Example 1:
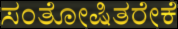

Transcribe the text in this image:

ಸಂತೋಷಿತರೇಕೆ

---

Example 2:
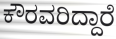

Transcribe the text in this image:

ಕೌರವರಿದ್ದಾರೆ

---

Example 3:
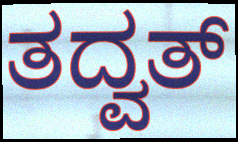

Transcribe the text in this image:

ತದ್ವತ್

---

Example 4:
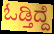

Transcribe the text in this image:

ಓಡ್ತಿದ್ದೆ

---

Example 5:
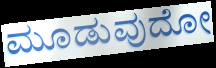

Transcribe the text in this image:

ಮೂಡುವುದೋ